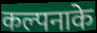
कल्पनाके